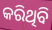
କରିଥିବି